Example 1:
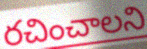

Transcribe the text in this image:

రచించాలని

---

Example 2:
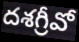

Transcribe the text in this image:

దశగ్రీవో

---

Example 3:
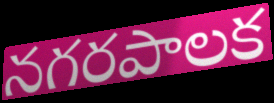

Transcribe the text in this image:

నగరపాలక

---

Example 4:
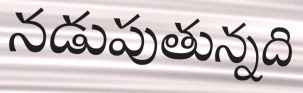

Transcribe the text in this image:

నడుపుతున్నది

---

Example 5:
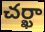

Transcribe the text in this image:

చర్ఖా